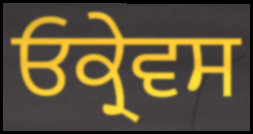
ਓਕ੍ਰੇਵਸ